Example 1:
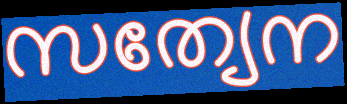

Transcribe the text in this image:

സത്യേന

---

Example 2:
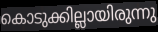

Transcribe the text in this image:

കൊടുക്കില്ലായിരുന്നു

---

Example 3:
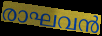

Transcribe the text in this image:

രാഘവൻ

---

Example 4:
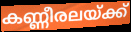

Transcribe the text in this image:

കണ്ണീരലയ്ക്ക്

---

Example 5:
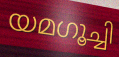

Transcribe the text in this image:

യമഗൂച്ചി